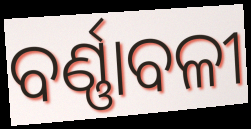
ବର୍ଣ୍ଣାବଳୀ